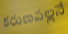
కరుణవల్లనే